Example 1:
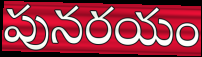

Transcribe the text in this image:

పునరయం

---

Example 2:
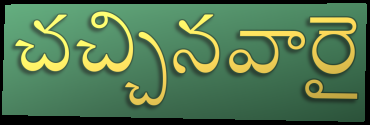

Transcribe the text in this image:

చచ్చినవారై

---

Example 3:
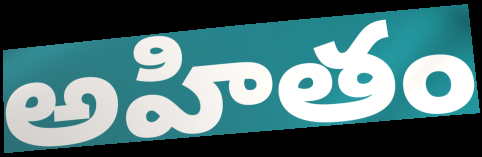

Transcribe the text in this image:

అహితం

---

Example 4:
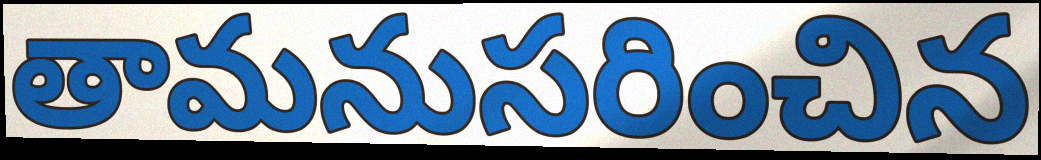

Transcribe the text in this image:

తామనుసరించిన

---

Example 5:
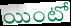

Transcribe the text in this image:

యింటో